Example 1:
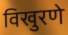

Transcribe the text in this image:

विखुरणे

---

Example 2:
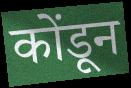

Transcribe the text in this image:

कोंडून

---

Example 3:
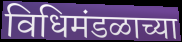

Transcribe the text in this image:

विधिमंडळाच्या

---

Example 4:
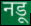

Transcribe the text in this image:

नडू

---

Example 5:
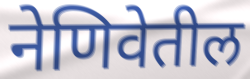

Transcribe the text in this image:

नेणिवेतील